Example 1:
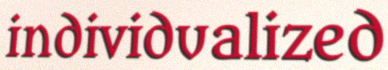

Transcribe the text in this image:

individualized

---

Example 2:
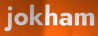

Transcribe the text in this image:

jokham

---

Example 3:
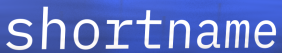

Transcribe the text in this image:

shortname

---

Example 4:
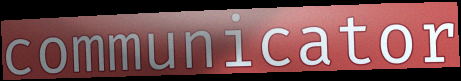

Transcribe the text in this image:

communicator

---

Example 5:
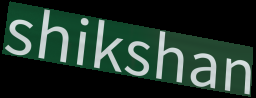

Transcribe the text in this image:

shikshan